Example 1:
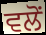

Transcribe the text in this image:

ਵਲੋਂ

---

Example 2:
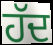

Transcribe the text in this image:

ਹੱਦ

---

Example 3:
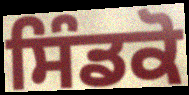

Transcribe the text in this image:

ਸਿੰਡਕੋ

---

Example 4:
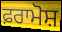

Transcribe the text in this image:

ਫ਼ਰਾਮੋਸ਼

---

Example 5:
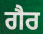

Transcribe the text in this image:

ਗੈਰ